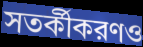
সতর্কীকরণও